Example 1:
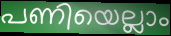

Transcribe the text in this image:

പണിയെല്ലാം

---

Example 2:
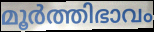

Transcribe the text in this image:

മൂർത്തിഭാവം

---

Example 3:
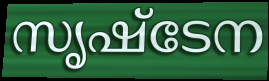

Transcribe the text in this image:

സൃഷ്ടേന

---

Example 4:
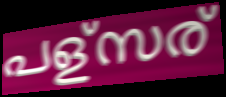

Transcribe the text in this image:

പള്സര്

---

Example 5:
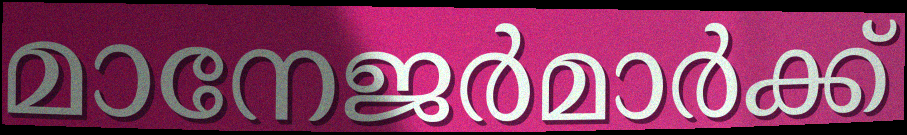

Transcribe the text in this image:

മാനേജർമാർക്ക്